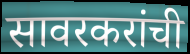
सावरकरांची